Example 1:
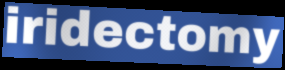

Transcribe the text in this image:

iridectomy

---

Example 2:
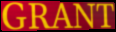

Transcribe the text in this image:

GRANT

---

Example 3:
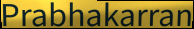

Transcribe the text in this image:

Prabhakarran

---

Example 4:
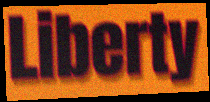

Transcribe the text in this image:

Liberty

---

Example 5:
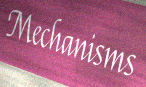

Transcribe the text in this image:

Mechanisms